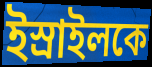
ইস্রাইলকে